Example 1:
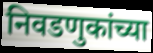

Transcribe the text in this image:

निवडणुकांच्या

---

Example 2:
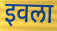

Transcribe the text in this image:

इवला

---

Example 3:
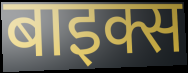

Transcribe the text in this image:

बाइक्स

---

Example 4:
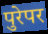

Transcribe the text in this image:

पुरेपर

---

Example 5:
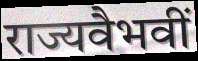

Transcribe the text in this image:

राज्यवैभवीं